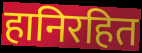
हानिरहित